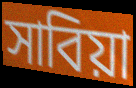
সাবিয়া